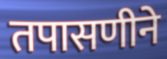
तपासणीने